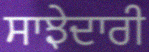
ਸਾਝੇਦਾਰੀ